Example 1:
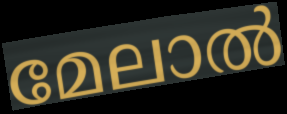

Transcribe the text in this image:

മേലാൽ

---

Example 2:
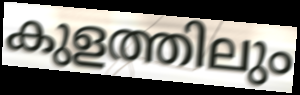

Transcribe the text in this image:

കുളത്തിലും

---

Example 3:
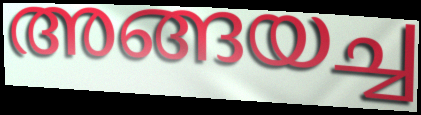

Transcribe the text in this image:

അങ്ങയച്ച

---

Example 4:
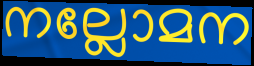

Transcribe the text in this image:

നല്ലോമന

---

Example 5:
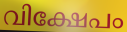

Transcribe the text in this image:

വിക്ഷേപം